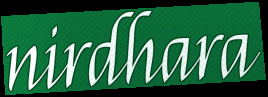
nirdhara